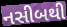
નસીબથી